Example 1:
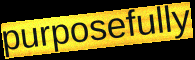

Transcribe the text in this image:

purposefully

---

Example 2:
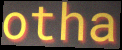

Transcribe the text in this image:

otha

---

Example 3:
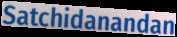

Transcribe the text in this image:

Satchidanandan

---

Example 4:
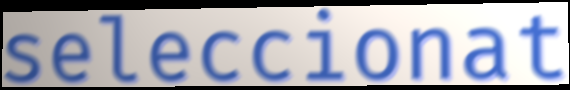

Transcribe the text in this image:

seleccionat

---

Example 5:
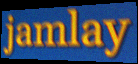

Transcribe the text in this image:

jamlay